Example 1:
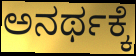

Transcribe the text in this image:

ಅನರ್ಥಕ್ಕೆ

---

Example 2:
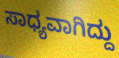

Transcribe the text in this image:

ಸಾಧ್ಯವಾಗಿದ್ದು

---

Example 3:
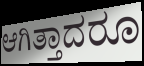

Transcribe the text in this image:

ಆಗಿತ್ತಾದರೂ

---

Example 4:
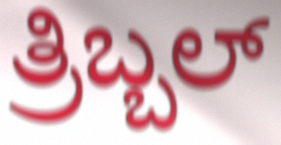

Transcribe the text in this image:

ತ್ರಿಬ್ಬಲ್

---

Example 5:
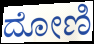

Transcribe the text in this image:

ದೋಣಿ